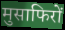
मुसाफिरों